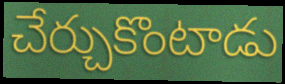
చేర్చుకొంటాడు